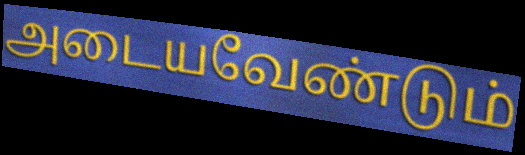
அடையவேண்டும்